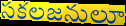
సకలజనులూ